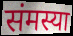
संमस्या